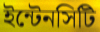
ইন্টেনসিটি